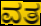
ವತ